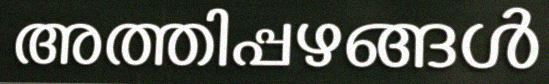
അത്തിപ്പഴങ്ങൾ